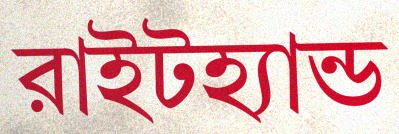
রাইটহ্যান্ড